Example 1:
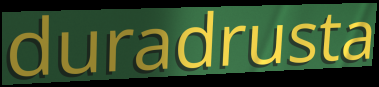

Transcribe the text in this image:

duradrusta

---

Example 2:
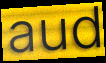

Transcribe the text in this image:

aud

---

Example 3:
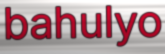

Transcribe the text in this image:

bahulyo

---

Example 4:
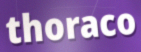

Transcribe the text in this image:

thoraco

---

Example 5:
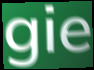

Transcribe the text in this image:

gie